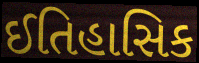
ઈતિહાસિક